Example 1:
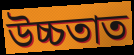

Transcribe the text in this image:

উচ্চতাত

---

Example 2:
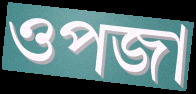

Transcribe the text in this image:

ওপজা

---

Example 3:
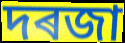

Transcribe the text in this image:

দৰজা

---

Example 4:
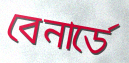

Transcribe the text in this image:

বেনাৰ্ডে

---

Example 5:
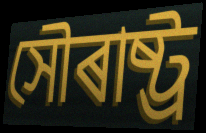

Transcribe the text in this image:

সৌৰাষ্ট্ৰ